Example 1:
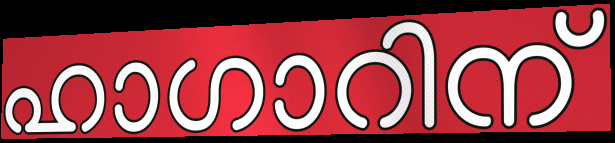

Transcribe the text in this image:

ഹാഗാറിന്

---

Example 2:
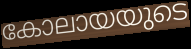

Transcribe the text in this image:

കോലായയുടെ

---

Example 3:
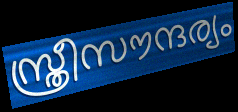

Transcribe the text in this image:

സ്ത്രീസൗന്ദര്യം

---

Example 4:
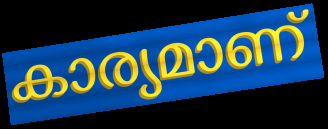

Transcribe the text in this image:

കാര്യമാണ്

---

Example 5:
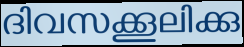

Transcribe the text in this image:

ദിവസക്കൂലിക്കു